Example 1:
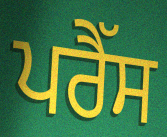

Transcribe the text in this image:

ਪਰੈੱਸ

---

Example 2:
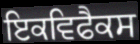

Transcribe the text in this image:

ਇਕਵਿਫੈਕਸ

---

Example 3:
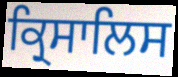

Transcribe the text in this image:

ਕ੍ਰਿਸਾਲਿਸ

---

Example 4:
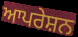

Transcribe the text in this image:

ਆਪਰੇਸ਼ਨ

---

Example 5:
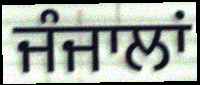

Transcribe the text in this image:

ਜੰਜਾਲਾਂ